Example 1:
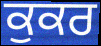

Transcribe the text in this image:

ਕੁਕਰ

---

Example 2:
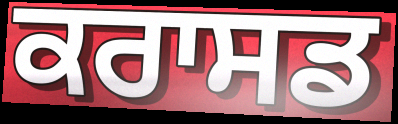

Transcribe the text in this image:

ਕਰਾਸਡ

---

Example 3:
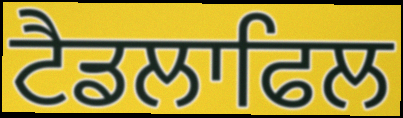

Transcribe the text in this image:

ਟੈਡਲਾਫਿਲ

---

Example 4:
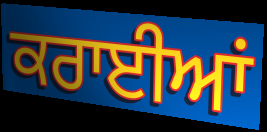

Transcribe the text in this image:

ਕਰਾਈਆਂ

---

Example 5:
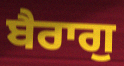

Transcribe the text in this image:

ਬੈਰਾਗੁ